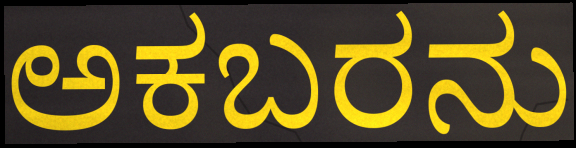
ಅಕಬರನು